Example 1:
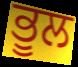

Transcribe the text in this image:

ਭੂਲ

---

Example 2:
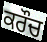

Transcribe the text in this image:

ਕਰੌਚ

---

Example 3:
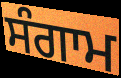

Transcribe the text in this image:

ਸੰਗਾਮ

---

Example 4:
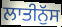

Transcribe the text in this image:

ਲਾਤੀਨੁੱਸ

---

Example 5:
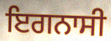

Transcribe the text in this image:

ਇਗਨਾਸੀ